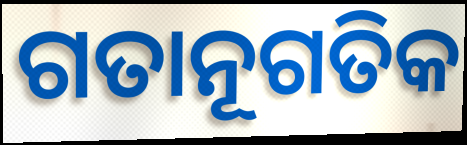
ଗତାନୂଗତିକ